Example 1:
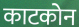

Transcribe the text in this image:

काटकोन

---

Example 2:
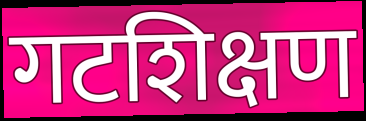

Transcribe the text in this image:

गटशिक्षण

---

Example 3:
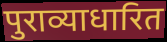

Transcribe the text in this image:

पुराव्याधारित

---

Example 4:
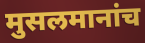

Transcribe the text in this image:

मुसलमानांच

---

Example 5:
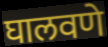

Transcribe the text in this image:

घालवणे